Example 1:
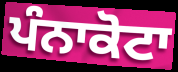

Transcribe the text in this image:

ਪੰਨਾਕੋਟਾ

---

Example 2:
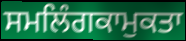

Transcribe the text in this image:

ਸਮਲਿੰਗਕਾਮੁਕਤਾ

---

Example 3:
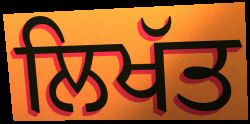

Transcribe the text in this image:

ਲਿਖੱਤ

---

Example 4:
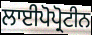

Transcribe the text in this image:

ਲਾਈਪੋਪ੍ਰੋਟੀਨ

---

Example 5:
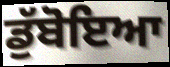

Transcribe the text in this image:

ਡੁੱਬੋਇਆ